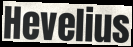
Hevelius